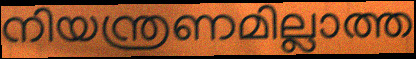
നിയന്ത്രണമില്ലാത്ത